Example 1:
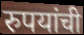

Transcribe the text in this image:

रुपयांची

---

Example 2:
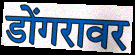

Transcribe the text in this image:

डोंगरावर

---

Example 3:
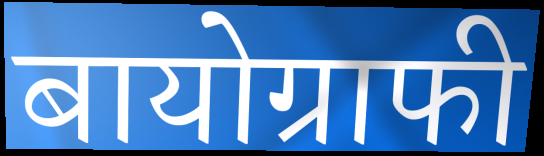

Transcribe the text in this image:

बायोग्राफी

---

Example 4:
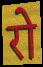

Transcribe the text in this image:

रो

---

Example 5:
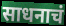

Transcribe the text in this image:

साधनाचं